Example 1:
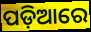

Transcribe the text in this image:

ପଡ଼ିଆରେ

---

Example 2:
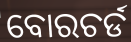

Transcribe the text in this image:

ବୋରଚର୍ଡ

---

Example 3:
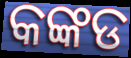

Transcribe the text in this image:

କଙ୍କଡ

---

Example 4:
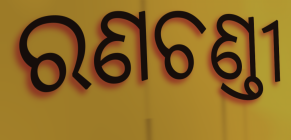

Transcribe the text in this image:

ରଣଚଣ୍ଡୀ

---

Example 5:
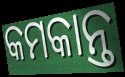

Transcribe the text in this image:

କମକାନ୍ତ